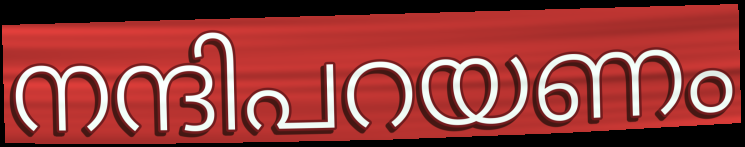
നന്ദിപറയണം